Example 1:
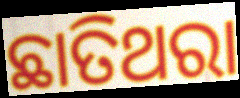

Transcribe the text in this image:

ଛାତିଥରା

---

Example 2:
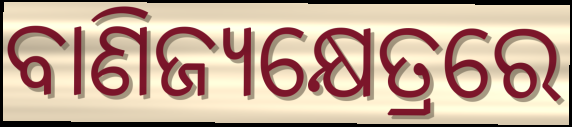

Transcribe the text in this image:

ବାଣିଜ୍ୟକ୍ଷେତ୍ରରେ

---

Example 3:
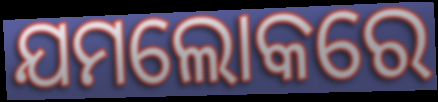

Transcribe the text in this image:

ଯମଲୋକରେ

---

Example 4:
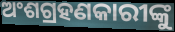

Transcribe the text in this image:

ଅଂଶଗ୍ରହଣକାରୀଙ୍କୁ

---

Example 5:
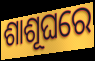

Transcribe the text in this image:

ଶାଶୂଘରେ